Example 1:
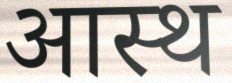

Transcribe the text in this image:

आस्थ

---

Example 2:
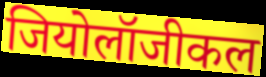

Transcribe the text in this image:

जियोलॉजीकल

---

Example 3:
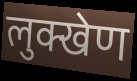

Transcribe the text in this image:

लुक्खेण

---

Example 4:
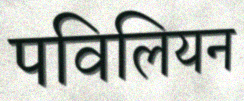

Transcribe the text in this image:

पविलियन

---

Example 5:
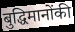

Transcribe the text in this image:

बुद्धिमानोंकी